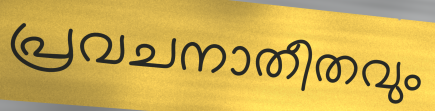
പ്രവചനാതീതവും